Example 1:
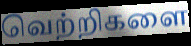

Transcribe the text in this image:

வெற்றிகளை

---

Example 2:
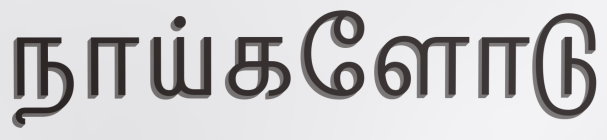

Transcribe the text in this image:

நாய்களோடு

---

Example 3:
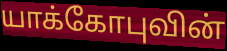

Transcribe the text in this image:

யாக்கோபுவின்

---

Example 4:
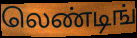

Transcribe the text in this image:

லெண்டிங்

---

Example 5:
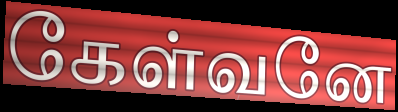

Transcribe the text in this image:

கேள்வனே